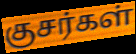
குசர்கள்